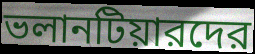
ভলানটিয়ারদের